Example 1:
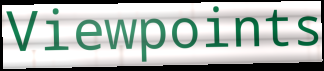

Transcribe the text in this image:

Viewpoints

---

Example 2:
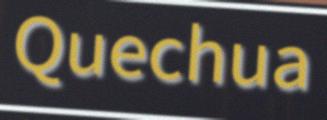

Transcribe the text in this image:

Quechua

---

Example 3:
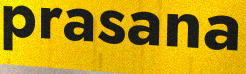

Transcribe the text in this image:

prasana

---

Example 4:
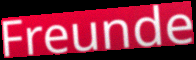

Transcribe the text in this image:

Freunde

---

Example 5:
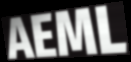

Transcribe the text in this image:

AEML